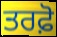
ਤਰਫ਼ੋ